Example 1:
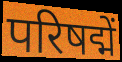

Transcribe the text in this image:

परिषद्में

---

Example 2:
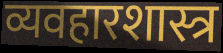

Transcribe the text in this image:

व्यवहारशास्त्र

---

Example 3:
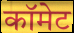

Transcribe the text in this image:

कॉमेट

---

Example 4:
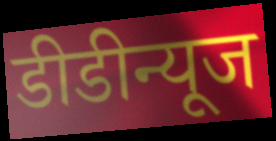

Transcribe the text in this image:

डीडीन्यूज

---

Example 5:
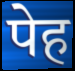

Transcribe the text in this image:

पेह